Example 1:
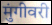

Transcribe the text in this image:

मुंगीवरी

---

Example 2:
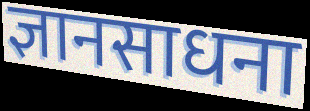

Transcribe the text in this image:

ज्ञानसाधना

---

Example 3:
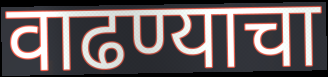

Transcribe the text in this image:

वाढण्याचा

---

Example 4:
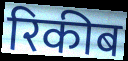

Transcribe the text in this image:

रिकीब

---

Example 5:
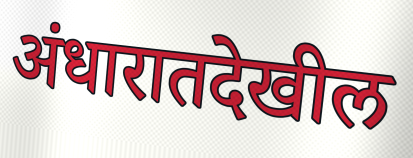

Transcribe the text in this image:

अंधारातदेखील